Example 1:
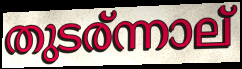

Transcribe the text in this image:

തുടര്ന്നാല്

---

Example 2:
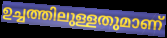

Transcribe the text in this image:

ഉച്ചത്തിലുള്ളതുമാണ്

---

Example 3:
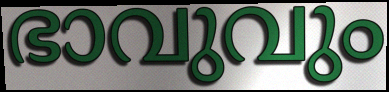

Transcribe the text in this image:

ഭാവുവും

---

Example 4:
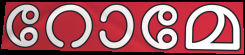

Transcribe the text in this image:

റോമേ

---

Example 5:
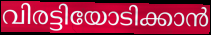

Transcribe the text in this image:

വിരട്ടിയോടിക്കാൻ